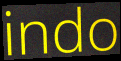
indo